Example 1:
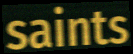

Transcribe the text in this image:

saints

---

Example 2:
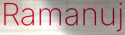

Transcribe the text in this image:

Ramanuj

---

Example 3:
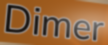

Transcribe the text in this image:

Dimer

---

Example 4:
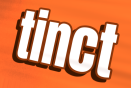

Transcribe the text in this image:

tinct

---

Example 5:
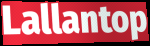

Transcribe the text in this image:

Lallantop